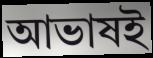
আভাষই